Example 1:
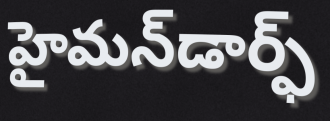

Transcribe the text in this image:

హైమన్‌డార్ఫ్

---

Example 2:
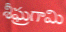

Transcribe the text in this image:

శీఘ్రగామి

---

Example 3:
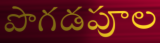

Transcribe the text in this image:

పొగడపూల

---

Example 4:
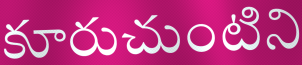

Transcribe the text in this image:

కూరుచుంటిని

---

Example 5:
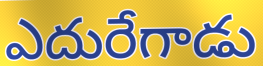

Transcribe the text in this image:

ఎదురేగాడు